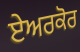
ਏਅਰਕੋਰ